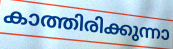
കാത്തിരിക്കുന്നാ